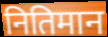
नितिमान